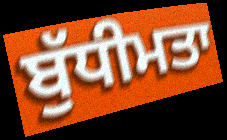
ਬੁੱਧੀਮਤਾ